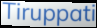
Tiruppati